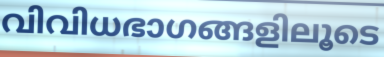
വിവിധഭാഗങ്ങളിലൂടെ